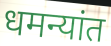
धमन्यांत